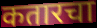
कतारचा